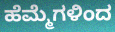
ಹೆಮ್ಮೆಗಳಿಂದ